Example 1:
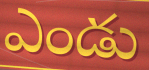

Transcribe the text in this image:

ఎండు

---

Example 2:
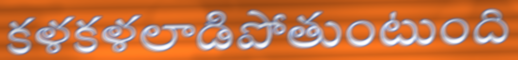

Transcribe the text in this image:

కళకళలాడిపోతుంటుంది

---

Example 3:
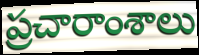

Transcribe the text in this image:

ప్రచారాంశాలు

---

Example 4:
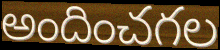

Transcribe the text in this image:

అందించగల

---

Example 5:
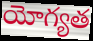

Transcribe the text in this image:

యోగ్యత